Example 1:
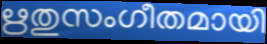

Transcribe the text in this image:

ഋതുസംഗീതമായി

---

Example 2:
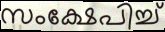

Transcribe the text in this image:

സംക്ഷേപിച്ച്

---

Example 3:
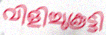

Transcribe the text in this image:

വിളിച്ചുകൂട്ടി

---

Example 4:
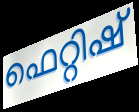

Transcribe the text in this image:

ഫെറ്റിഷ്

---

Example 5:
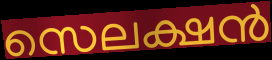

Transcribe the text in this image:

സെലക്ഷൻ